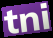
tni